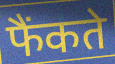
फैंकते